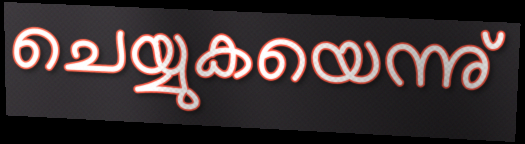
ചെയ്യുകയെന്നു്